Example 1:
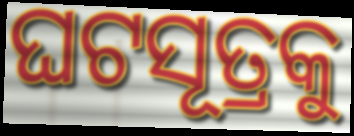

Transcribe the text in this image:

ଘଟସୂତ୍ରକୁ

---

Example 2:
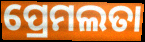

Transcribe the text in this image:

ପ୍ରେମଲତା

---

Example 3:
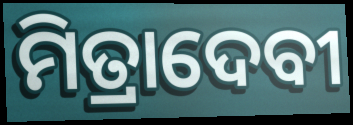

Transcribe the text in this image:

ମିତ୍ରାଦେବୀ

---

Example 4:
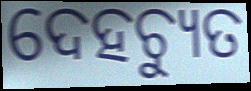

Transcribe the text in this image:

ଦେହଚ୍ୟୁତ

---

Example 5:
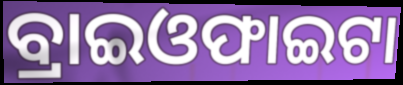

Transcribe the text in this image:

ବ୍ରାଇଓଫାଇଟା